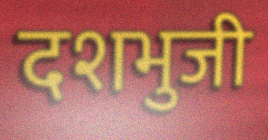
दशभुजी